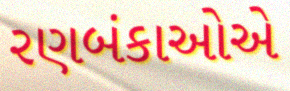
રણબંકાઓએ